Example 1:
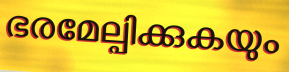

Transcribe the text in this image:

ഭരമേല്പിക്കുകയും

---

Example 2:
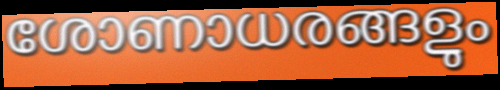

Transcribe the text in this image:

ശോണാധരങ്ങളും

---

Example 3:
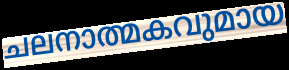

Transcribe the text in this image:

ചലനാത്മകവുമായ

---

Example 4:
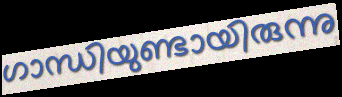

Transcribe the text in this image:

ഗാന്ധിയുണ്ടായിരുന്നു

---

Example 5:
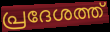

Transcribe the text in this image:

പ്രദേശത്ത്